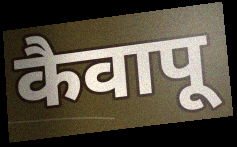
कैवापू